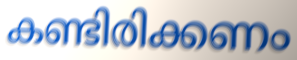
കണ്ടിരിക്കണം